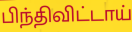
பிந்திவிட்டாய்